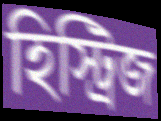
হিস্ট্রিজ